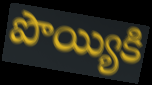
పొయ్యికి